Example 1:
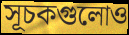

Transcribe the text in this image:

সূচকগুলোও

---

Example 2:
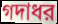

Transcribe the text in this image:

গদাধর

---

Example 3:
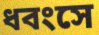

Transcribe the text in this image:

ধবংসে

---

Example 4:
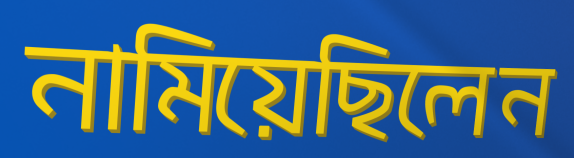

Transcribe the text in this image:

নামিয়েছিলেন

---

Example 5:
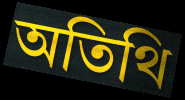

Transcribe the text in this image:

অতিথি